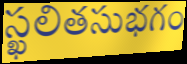
స్ఖలితసుభగం